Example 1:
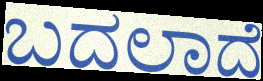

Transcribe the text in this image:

ಬದಲಾದೆ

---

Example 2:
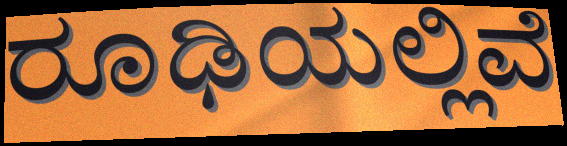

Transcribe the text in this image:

ರೂಢಿಯಲ್ಲಿವೆ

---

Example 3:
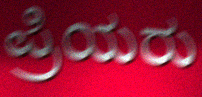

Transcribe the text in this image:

ಪ್ರಿಯರು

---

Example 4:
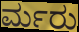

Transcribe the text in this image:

ರ್ಮರು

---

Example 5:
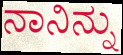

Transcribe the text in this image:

ನಾನಿನ್ನು